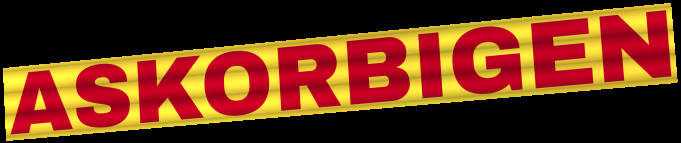
ASKORBIGEN